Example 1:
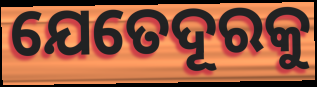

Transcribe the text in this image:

ଯେତେଦୂରକୁ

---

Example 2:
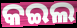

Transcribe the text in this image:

କଇଲ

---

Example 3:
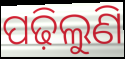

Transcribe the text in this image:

ପଢ଼ିଲୁଣି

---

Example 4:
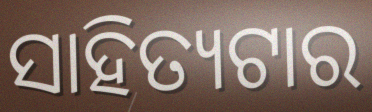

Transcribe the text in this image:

ସାହିତ୍ୟଟାର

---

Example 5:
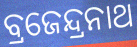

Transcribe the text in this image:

ବ୍ରଜେନ୍ଦ୍ରନାଥ